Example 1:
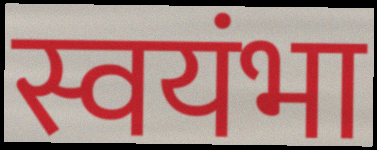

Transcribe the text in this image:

स्वयंभा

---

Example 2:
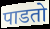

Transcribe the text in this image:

पाडतो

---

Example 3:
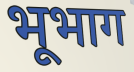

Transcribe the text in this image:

भूभाग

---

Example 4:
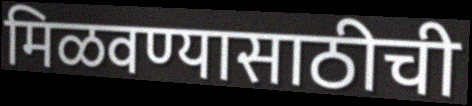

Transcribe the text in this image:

मिळवण्यासाठीची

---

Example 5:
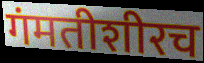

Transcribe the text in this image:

गंमतीशीरच